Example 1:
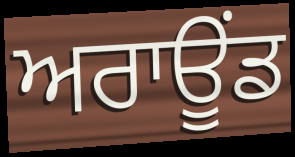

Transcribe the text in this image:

ਅਰਾਊਂਡ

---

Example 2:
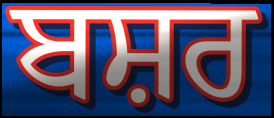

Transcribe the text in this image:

ਬਸ਼ਰ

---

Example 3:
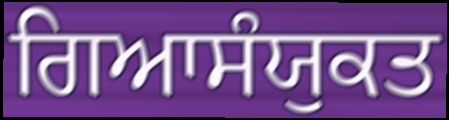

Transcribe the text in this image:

ਗਿਆਸੰਯੁਕਤ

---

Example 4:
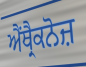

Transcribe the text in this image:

ਐਂਥ੍ਰੈਕਨੋਜ਼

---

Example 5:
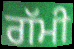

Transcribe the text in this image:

ਗੱਮੀ